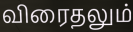
விரைதலும்